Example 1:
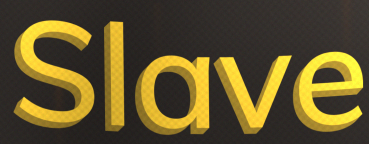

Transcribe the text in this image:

Slave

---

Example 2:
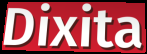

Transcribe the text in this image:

Dixita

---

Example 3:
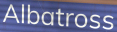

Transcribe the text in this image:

Albatross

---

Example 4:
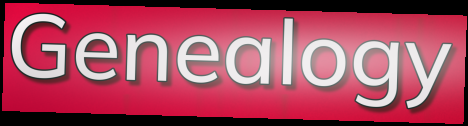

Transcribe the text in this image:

Genealogy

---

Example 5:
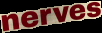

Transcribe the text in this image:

nerves